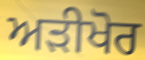
ਅੜੀਖੋਰ